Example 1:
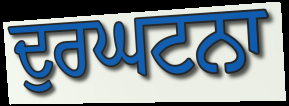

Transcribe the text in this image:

ਦੁਰਘਟਨਾ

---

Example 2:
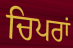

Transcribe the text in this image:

ਚਿਪਰਾਂ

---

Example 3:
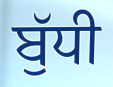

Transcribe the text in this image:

ਬੁੱਧੀ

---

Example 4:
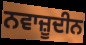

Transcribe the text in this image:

ਨਵਾਜ਼ੂਦੀਨ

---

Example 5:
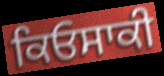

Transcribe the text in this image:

ਕਿਓਸਾਕੀ